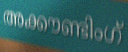
അക്കൗണ്ടിംഗ്